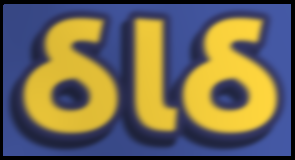
ઠાઠ